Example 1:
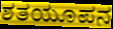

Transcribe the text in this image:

ಶತಯೂಪನ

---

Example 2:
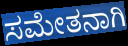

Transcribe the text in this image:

ಸಮೇತನಾಗಿ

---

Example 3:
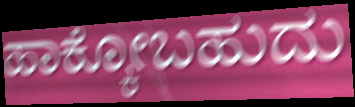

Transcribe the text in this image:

ಹಾಕ್ಕೋಬಹುದು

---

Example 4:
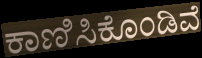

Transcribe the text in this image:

ಕಾಣಿಸಿಕೊಂಡಿವೆ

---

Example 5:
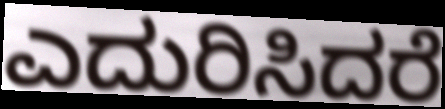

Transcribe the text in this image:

ಎದುರಿಸಿದರೆ